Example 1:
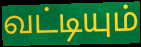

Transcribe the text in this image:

வட்டியும்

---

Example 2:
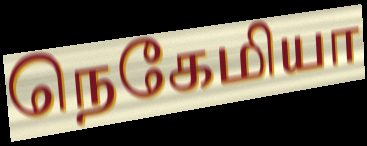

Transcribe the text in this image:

நெகேமியா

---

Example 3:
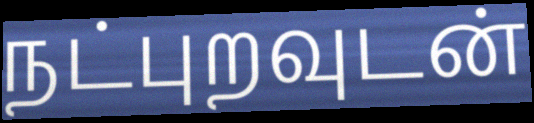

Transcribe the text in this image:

நட்புறவுடன்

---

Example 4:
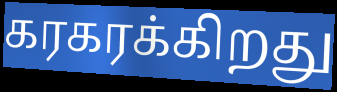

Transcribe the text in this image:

கரகரக்கிறது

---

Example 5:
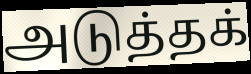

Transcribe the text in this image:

அடுத்தக்